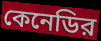
কেনেডির